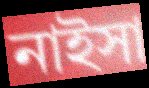
নাইসা